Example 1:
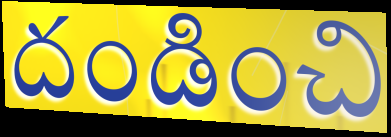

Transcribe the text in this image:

దండించి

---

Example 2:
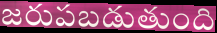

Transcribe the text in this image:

జరుపబడుతుంది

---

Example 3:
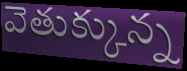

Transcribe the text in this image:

వెతుక్కున్న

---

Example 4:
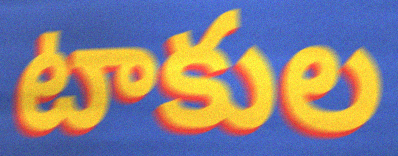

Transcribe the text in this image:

టాకుల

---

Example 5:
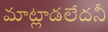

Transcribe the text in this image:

మాట్లాడలేదనీ